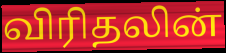
விரிதலின்